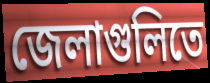
জেলাগুলিতে